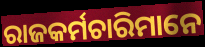
ରାଜକର୍ମଚାରିମାନେ